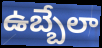
ఉబ్బేలా